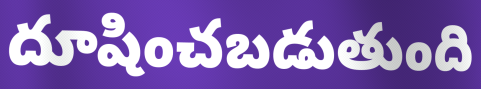
దూషించబడుతుంది